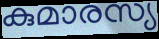
കുമാരസ്യ